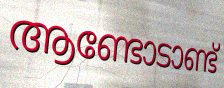
ആണ്ടോടാണ്ട്